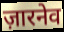
ज़ारनेव